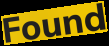
Found